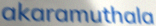
akaramuthala